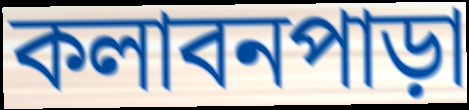
কলাবনপাড়া